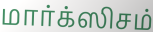
மார்க்ஸிசம்